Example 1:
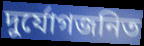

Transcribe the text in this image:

দুর্যোগজনিত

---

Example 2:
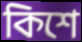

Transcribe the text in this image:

কিশে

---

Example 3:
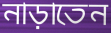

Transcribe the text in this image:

নাড়াতেন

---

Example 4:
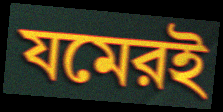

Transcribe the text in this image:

যমেরই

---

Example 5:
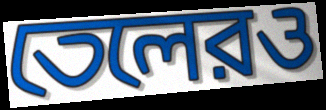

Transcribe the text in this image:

তেলেরও